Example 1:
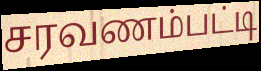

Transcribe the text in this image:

சரவணம்பட்டி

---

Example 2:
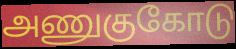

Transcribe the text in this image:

அணுகுகோடு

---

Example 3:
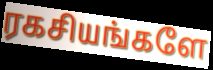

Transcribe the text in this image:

ரகசியங்களே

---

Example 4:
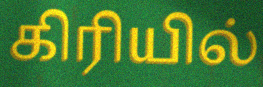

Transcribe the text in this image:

கிரியில்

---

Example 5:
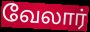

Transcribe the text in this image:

வேலார்